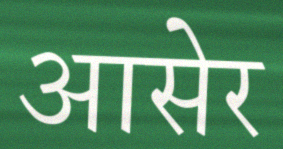
आसेर